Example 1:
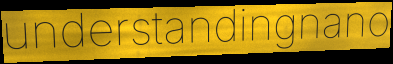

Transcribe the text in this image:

understandingnano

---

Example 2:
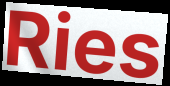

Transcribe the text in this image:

Ries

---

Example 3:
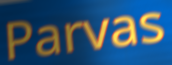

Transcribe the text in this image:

Parvas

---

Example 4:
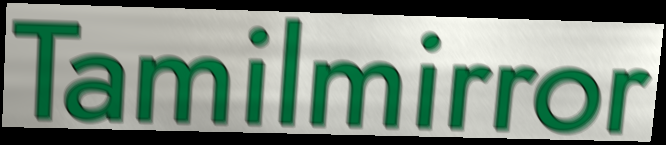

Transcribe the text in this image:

Tamilmirror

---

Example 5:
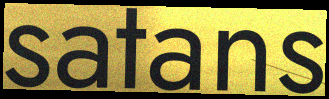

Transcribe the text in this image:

satans